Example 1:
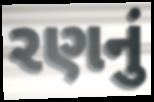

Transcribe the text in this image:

રણનું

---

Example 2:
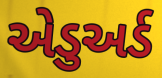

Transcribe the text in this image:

એડુઅર્ડ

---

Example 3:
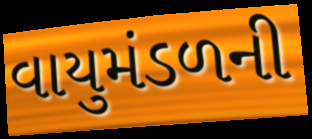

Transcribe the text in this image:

વાયુમંડળની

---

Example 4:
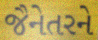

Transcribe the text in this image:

જૈનેતરને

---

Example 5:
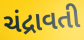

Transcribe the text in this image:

ચંદ્રાવતી